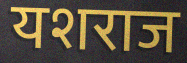
यशराज